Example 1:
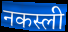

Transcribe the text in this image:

नकस्ली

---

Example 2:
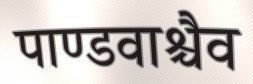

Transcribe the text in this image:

पाण्डवाश्चैव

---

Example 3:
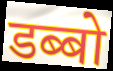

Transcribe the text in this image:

डब्बो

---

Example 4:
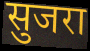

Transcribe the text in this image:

सुजरा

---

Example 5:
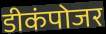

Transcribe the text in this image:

डीकंपोजर